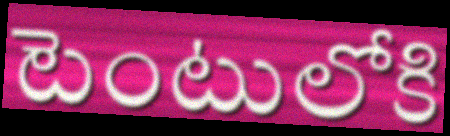
టెంటులోకి